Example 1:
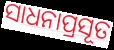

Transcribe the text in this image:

ସାଧନାପ୍ରସୂତ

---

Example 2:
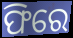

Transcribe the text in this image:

ଫିରେ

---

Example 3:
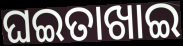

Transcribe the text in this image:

ଘଇତାଖାଇ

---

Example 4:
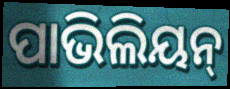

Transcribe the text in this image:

ପାଭିଲିୟନ୍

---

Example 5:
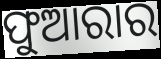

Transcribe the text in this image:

ଫୁଆରାର